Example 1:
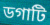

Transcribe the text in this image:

ডগাটি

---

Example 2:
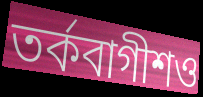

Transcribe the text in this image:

তর্কবাগীশও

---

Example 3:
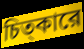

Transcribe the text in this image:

চিত্কারে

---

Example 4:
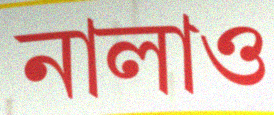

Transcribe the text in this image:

নালাও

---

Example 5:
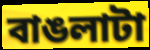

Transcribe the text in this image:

বাঙলাটা